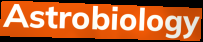
Astrobiology